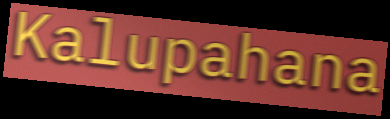
Kalupahana